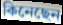
কিনেছেন